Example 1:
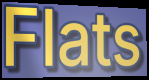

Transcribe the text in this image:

Flats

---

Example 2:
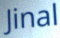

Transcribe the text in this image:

Jinal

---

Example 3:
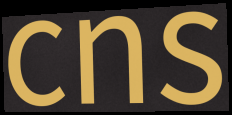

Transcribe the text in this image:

cns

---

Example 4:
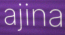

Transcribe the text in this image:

ajina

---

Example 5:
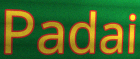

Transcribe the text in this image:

Padai